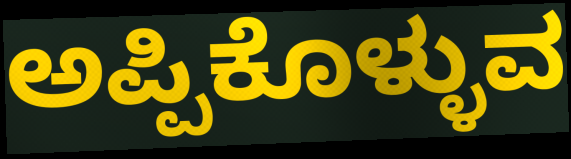
ಅಪ್ಪಿಕೊಳ್ಳುವ